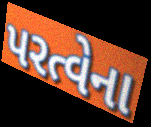
પરત્વેના